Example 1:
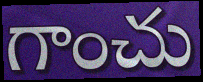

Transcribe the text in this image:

గాంచు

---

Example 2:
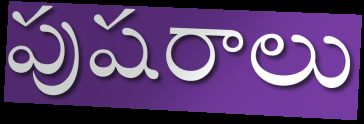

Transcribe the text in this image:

పుషరాలు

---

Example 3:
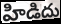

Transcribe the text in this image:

హిడిదు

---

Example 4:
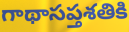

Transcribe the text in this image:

గాథాసప్తశతికి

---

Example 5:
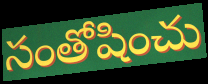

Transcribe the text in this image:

సంతోషించు